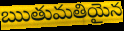
ఋతుమతియైన